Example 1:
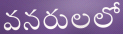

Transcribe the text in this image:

వనరులలో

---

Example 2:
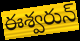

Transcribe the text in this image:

ఈశ్వరున్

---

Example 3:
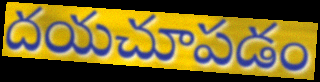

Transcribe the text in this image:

దయచూపడం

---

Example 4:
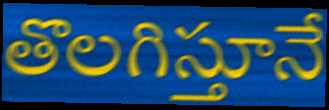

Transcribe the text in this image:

తొలగిస్తూనే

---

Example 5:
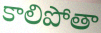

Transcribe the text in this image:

కాలిపోతా